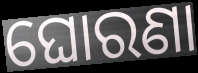
ଘୋରଣା